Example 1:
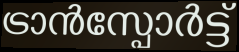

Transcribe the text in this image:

ട്രാൻസ്പോർട്ട്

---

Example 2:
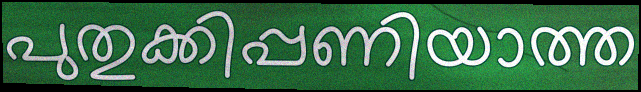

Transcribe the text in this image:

പുതുക്കിപ്പണിയാത്ത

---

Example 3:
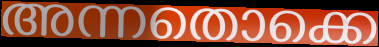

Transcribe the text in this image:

അന്നതൊക്കെ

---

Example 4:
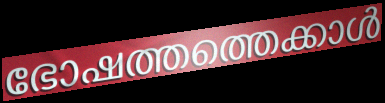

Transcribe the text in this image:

ഭോഷത്തത്തെക്കാൾ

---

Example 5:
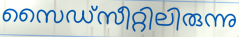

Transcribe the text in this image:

സൈഡ്സീറ്റിലിരുന്നു